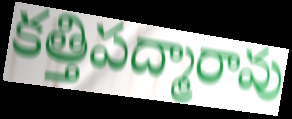
కత్తిపద్మారావు